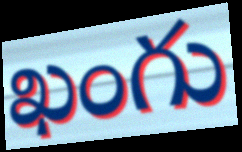
ఖంగు